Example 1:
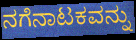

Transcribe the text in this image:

ನಗೆನಾಟಕವನ್ನು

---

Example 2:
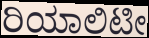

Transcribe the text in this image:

ರಿಯಾಲಿಟೀ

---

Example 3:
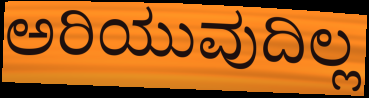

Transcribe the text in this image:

ಅರಿಯುವುದಿಲ್ಲ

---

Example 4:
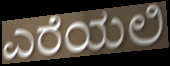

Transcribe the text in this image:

ಎರೆಯಲಿ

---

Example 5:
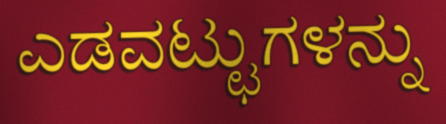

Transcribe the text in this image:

ಎಡವಟ್ಟುಗಳನ್ನು